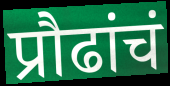
प्रौढांचं